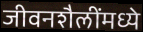
जीवनशैलींमध्ये